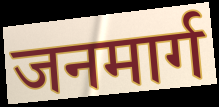
जनमार्ग